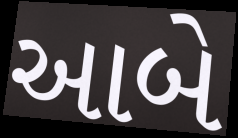
આબે